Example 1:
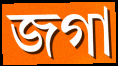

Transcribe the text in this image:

জগা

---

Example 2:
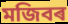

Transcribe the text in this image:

মজিবৰ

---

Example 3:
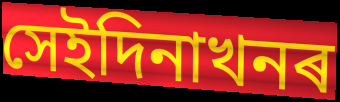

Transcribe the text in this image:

সেইদিনাখনৰ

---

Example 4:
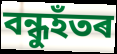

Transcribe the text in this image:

বন্ধুহঁতৰ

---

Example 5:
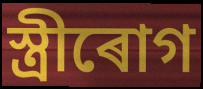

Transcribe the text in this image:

স্ত্ৰীৰোগ